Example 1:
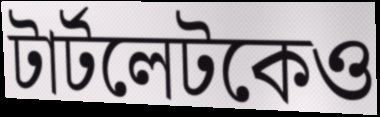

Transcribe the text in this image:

টার্টলেটকেও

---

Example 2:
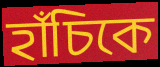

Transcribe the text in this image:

হাঁচিকে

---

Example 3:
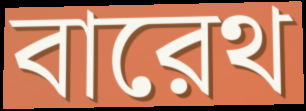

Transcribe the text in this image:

বারেথ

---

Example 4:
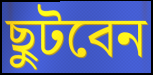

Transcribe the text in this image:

ছুটবেন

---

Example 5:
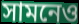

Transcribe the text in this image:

সামনেও